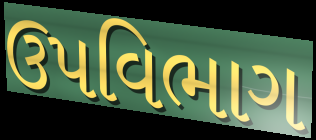
ઉપવિભાગ